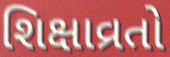
શિક્ષાવ્રતો